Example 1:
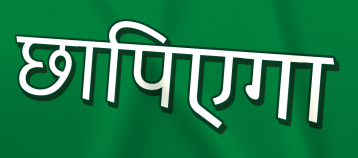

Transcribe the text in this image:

छापिएगा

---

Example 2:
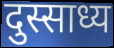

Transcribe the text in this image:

दुस्साध्य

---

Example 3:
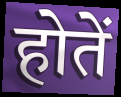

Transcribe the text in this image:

होतें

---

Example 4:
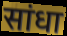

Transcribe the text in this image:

सांधा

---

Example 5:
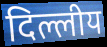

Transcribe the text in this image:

दिल्लीय